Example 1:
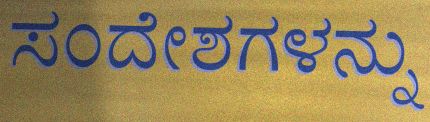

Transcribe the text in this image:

ಸಂದೇಶಗಳನ್ನು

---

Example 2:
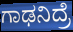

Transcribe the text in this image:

ಗಾಢನಿದ್ರೆ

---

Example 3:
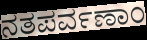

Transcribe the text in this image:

ನತಪರ್ವಣಾಂ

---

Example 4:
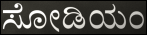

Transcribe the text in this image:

ಸೋಡಿಯಂ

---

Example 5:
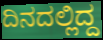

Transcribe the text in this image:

ದಿನದಲ್ಲಿದ್ದ